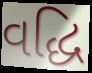
વદ્ધિ